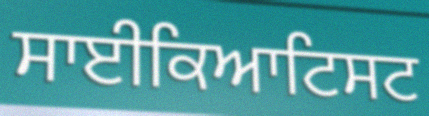
ਸਾਈਕਿਆਟਿਸਟ